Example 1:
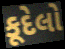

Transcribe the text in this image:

કૂદેલો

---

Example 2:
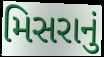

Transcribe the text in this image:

મિસરાનું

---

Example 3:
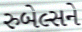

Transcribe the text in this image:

રુબેલ્સને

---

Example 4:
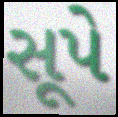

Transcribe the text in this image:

સૂપે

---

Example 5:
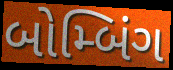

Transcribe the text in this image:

બોમ્બિંગ